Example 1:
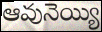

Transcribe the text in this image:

ఆవునెయ్యి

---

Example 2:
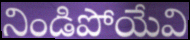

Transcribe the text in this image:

నిండిపోయేవి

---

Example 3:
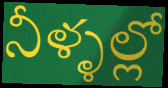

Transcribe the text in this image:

నీళ్ళల్లో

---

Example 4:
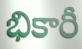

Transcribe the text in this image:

భికారీ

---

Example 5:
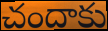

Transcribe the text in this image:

చందాకు